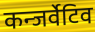
कन्जर्वेटिव